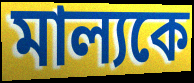
মাল্যকে